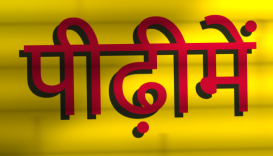
पीढ़ीमें